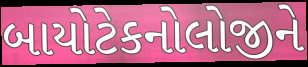
બાયોટેકનોલોજીને